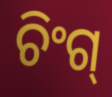
ଚିଂଗ୍